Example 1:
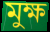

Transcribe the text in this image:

মুক্ষ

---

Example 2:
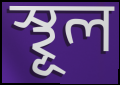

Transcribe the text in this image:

স্থূল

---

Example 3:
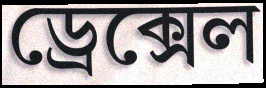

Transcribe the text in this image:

ড্রেক্সেল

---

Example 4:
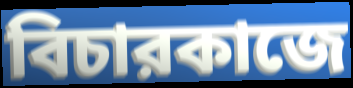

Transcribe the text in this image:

বিচারকাজে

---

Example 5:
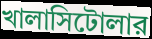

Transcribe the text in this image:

খালাসিটোলার